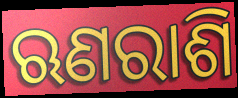
ଋଣରାଶି